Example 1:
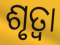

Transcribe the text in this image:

ଶୃତ୍ୱା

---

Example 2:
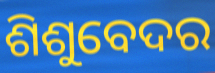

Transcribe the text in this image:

ଶିଶୁବେଦର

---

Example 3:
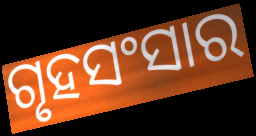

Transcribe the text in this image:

ଗୃହସଂସାର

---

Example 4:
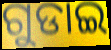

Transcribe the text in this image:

ଗୁଡାଇ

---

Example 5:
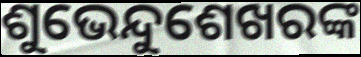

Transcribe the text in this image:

ଶୁଭେନ୍ଦୁଶେଖରଙ୍କ